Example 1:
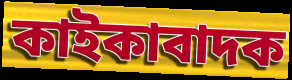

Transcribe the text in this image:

কাইকাবাদক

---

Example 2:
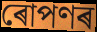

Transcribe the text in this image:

ৰোপণৰ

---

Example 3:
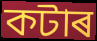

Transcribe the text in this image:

কটাৰ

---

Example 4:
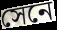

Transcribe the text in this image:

সেনে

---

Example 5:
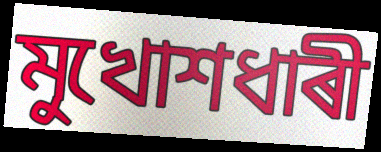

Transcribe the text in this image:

মুখোশধাৰী